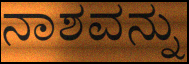
ನಾಶವನ್ನು